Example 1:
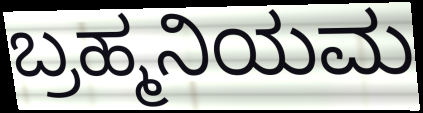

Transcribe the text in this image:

ಬ್ರಹ್ಮನಿಯಮ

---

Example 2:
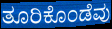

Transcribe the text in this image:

ತೂರಿಕೊಂಡೆವು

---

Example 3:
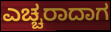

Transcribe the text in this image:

ಎಚ್ಚರಾದಾಗ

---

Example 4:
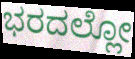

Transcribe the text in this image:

ಭರದಲ್ಲೋ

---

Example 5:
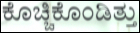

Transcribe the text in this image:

ಕೊಚ್ಚಿಕೊಂಡಿತ್ತು